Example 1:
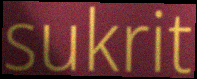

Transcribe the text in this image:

sukrit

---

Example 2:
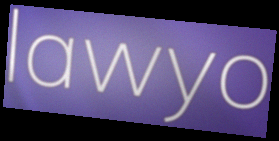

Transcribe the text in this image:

lawyo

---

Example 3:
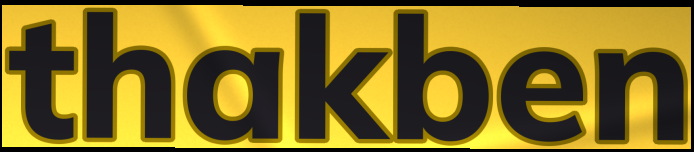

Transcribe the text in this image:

thakben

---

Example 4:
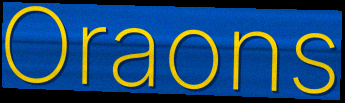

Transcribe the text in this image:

Oraons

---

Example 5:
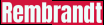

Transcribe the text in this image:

Rembrandt